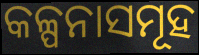
କଳ୍ପନାସମୂହ